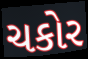
ચકોર